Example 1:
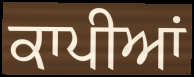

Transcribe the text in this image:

ਕਾਪੀਆਂ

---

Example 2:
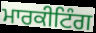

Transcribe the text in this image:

ਮਾਰਕੀਟਿੰਗ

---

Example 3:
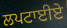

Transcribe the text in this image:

ਲਪਟਾਈਏ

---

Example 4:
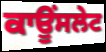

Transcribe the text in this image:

ਕਾਊਂਸਲੇਟ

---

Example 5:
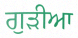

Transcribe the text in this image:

ਗੁੜੀਆ